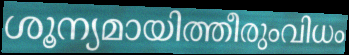
ശൂന്യമായിത്തീരുംവിധം